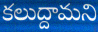
కలుద్దామని